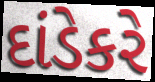
દાંડેકરે